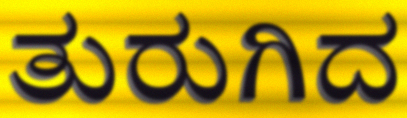
ತುರುಗಿದ